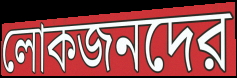
লোকজনদের